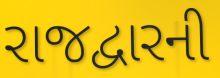
રાજદ્વારની